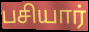
பசியார்